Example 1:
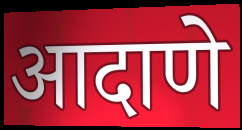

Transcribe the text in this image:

आदाणे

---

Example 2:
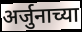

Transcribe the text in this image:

अर्जुनाच्या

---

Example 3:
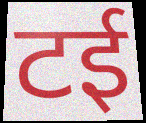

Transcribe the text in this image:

टई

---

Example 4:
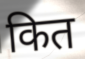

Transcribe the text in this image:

कित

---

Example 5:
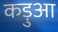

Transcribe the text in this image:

कड़ुआ